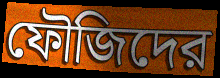
ফৌজিদের